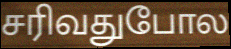
சரிவதுபோல